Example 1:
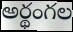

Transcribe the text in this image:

అర్థంగల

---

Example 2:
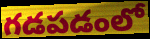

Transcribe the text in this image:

గడపడంలో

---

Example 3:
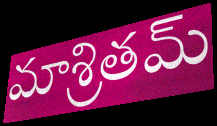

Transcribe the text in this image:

మాశ్రితమ్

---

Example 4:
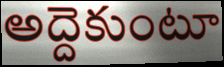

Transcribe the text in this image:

అద్దెకుంటూ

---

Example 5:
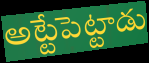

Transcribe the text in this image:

అట్టేపెట్టాడు